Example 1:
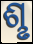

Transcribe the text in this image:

ଶୢ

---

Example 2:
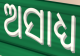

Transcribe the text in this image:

ଅସାଧ୍ୟ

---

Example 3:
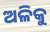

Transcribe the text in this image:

ଅଳିକୁ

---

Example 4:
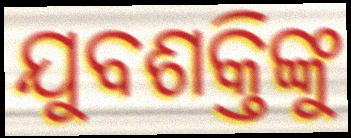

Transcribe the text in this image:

ଯୁବଶକ୍ତିଙ୍କୁ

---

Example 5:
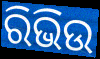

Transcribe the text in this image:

ରିଭିଉ